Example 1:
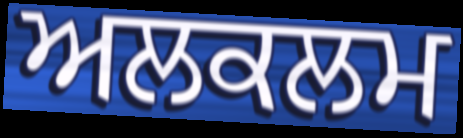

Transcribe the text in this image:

ਅਲਕਲਮ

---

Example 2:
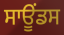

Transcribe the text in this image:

ਸਾਊਂਡਸ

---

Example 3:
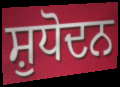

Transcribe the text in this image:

ਸ਼ੁਧੋਦਨ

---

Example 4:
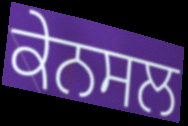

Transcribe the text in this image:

ਕੇਨਸਲ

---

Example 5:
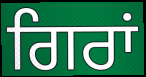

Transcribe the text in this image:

ਗਿਰਾਂ